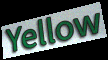
Yellow